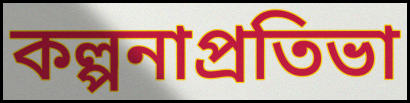
কল্পনাপ্রতিভা